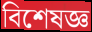
বিশেষজ্ঞ